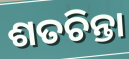
ଶତଚିନ୍ତା